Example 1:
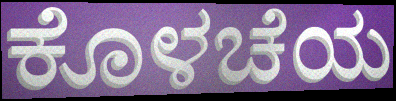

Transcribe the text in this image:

ಕೊಳಚೆಯ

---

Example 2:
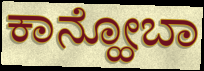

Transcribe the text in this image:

ಕಾನ್ಹೋಬಾ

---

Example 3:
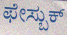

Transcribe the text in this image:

ಫೇಸ್ಬುಕ್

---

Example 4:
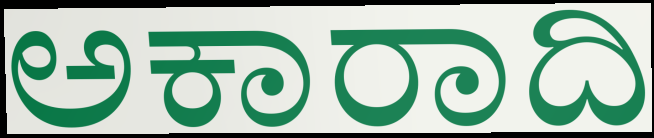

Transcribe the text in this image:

ಅಕಾರಾದಿ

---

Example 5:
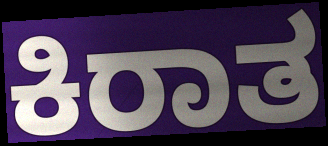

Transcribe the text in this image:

ಕಿರಾತ